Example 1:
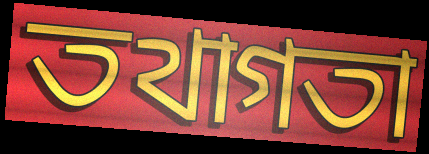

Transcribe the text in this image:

তথাগতা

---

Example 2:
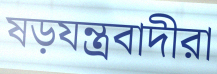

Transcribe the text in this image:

ষড়যন্ত্রবাদীরা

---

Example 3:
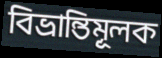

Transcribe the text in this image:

বিভ্রান্তিমূলক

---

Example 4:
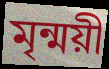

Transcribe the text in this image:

মৃন্ময়ী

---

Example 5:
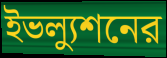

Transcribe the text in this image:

ইভল্যুশনের